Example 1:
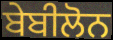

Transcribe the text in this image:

ਬੇਬੀਲੋਨ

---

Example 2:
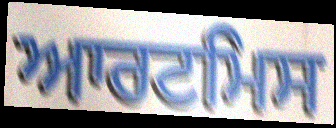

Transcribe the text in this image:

ਆਰਟਮਿਸ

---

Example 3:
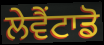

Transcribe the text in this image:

ਲੇਵੈਂਟਾਡੋ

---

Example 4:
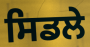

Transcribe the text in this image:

ਸਿਡਲੇ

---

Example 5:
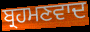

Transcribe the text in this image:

ਬ੍ਰਹਮਣਵਾਦ